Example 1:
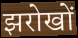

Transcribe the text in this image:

झरोखों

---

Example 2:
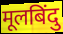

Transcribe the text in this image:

मूलबिंदु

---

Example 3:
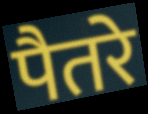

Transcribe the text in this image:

पैतरे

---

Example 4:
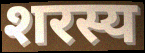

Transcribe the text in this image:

शरस्य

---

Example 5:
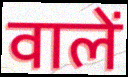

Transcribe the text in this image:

वालें